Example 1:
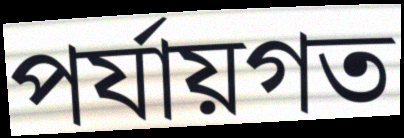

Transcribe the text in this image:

পর্যায়গত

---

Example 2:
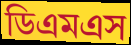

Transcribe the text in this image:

ডিএমএস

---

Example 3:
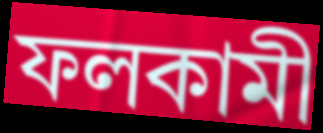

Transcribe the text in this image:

ফলকামী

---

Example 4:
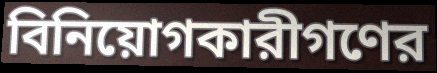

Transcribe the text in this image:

বিনিয়োগকারীগণের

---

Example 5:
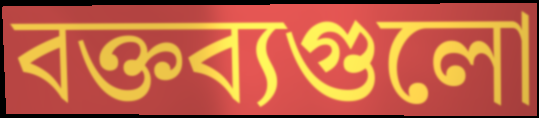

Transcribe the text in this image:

বক্তব্যগুলো